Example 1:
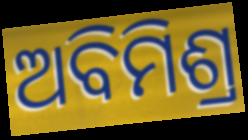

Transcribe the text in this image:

ଅବିମିଶ୍ର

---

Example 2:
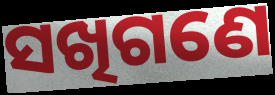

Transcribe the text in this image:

ସଖିଗଣେ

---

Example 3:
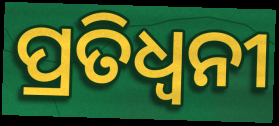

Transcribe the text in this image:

ପ୍ରତିଧ୍ଵନୀ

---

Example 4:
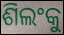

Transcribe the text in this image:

ଶିଲଂକୁ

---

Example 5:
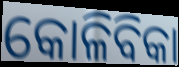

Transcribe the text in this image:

କୋଳିବିକା